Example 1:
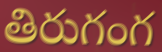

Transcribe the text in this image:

తిరుగంగ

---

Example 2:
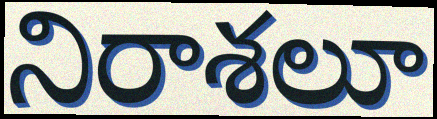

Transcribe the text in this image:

నిరాశలూ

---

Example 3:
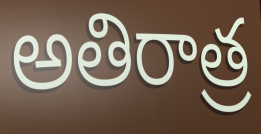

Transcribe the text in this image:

అతిరాత్ర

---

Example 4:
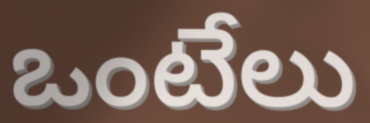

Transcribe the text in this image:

ఒంటేలు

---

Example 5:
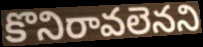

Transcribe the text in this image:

కొనిరావలెనని